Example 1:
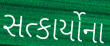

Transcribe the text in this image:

સત્કાર્યોના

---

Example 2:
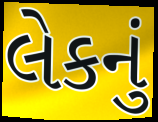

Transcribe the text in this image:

લેકનું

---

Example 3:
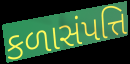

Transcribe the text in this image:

કળાસંપત્તિ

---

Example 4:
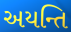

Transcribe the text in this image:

અયન્તિ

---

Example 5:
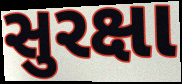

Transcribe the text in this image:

સુરક્ષા